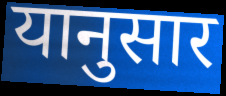
यानुसार